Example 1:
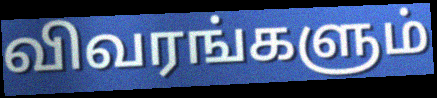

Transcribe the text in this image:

விவரங்களும்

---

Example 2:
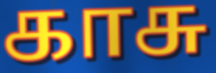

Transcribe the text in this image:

காசு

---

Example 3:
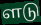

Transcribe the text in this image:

ளடு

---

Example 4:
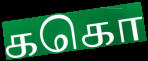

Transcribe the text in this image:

ககொ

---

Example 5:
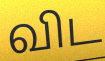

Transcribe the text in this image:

விட